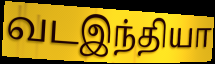
வடஇந்தியா